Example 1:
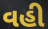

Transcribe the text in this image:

વહી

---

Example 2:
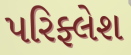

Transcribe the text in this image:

પરિફ્લેશ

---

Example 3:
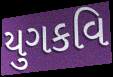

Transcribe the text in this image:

યુગકવિ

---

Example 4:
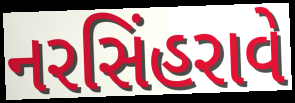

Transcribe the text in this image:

નરસિંહરાવે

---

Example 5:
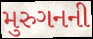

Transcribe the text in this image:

મુરુગનની